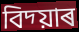
বিদ্য়াৰ